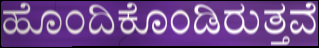
ಹೊಂದಿಕೊಂಡಿರುತ್ತವೆ